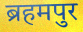
ब्रहमपुर